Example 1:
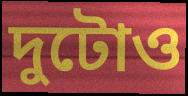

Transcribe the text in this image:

দুটোও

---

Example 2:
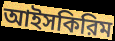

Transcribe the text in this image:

আইসকিরিম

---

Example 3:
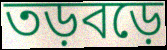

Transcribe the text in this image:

তড়বড়ে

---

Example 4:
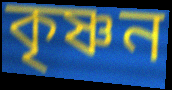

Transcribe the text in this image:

কৃষ্ণন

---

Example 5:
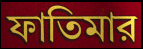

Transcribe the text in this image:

ফাতিমার